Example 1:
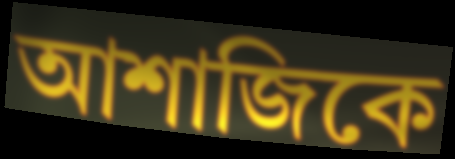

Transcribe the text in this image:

আশাজিকে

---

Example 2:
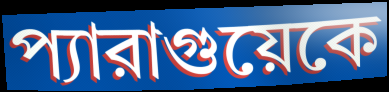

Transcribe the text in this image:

প্যারাগুয়েকে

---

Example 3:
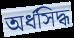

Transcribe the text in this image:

অর্ধসিদ্ধ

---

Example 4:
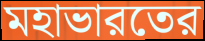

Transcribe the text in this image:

মহাভারতের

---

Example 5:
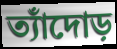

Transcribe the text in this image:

ত্যাঁদোড়